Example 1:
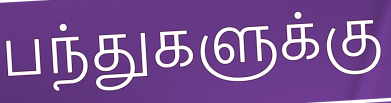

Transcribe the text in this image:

பந்துகளுக்கு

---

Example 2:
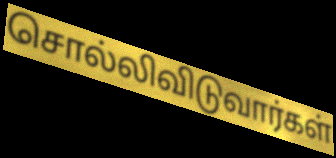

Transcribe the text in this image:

சொல்லிவிடுவார்கள்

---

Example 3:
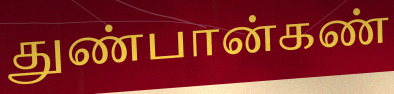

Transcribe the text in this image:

துண்பான்கண்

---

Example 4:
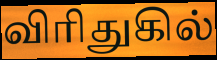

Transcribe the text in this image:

விரிதுகில்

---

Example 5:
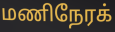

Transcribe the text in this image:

மணிநேரக்